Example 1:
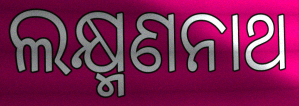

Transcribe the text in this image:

ଲକ୍ଷ୍ମଣନାଥ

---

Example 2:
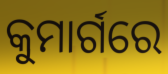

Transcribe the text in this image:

କୁମାର୍ଗରେ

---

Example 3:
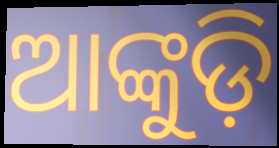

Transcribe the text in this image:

ଆଙ୍କୁଡ଼ି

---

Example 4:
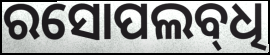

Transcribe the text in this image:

ରସୋପଲବ୍‌ଧି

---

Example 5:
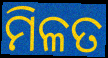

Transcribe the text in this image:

ମିଳତ